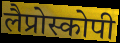
लैप्रोस्कोपी